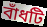
বাঁধটি